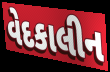
વેદકાલીન